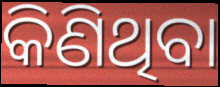
କିଣିଥିବା